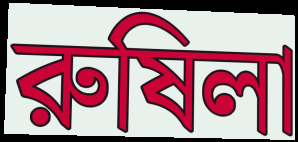
রুষিলা